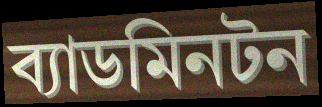
ব্যাডমিনটন